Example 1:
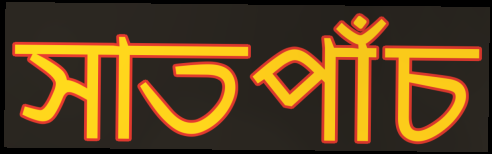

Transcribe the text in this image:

সাতপাঁচ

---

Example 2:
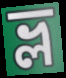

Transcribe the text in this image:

ভ্ল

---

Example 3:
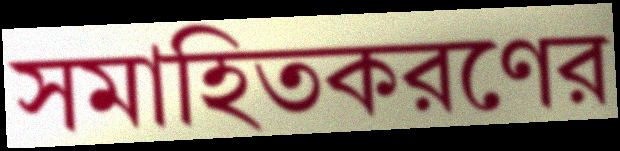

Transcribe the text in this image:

সমাহিতকরণের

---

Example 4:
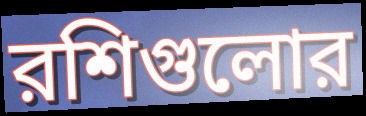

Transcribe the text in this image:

রশিগুলোর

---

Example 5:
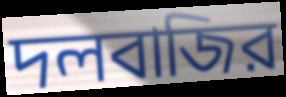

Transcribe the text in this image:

দলবাজির